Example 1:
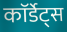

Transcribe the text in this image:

कॉर्डेट्स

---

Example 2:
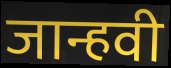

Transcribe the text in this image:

जान्‍हवी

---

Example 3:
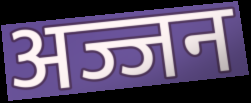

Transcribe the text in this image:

अज्जन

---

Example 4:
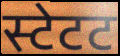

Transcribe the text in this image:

स्टेटट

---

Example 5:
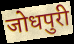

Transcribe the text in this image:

जोधपुरी